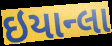
ઇયાન્લા